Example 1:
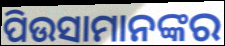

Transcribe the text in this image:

ପିଉସାମାନଙ୍କର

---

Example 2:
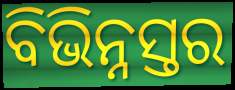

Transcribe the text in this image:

ବିଭିନ୍ନସ୍ତର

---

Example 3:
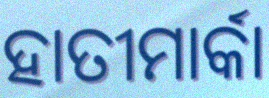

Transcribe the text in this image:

ହାତୀମାର୍କା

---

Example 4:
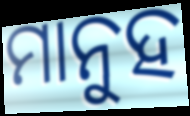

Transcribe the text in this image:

ମାନୁହ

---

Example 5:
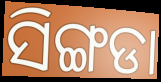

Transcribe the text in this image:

ସିଙ୍ଗଡା